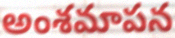
అంశమాపన